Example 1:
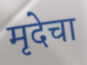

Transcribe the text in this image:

मृदेचा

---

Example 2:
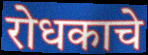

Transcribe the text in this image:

रोधकाचे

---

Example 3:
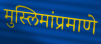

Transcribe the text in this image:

मुस्लिमांप्रमाणे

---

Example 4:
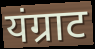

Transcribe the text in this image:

यंग्राट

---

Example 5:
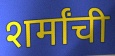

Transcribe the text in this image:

शर्मांची